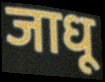
जाधू